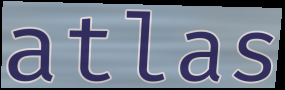
atlas